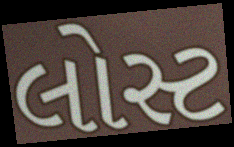
લોસ્ટ